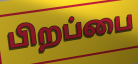
பிறப்பை